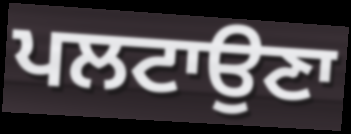
ਪਲਟਾਉਣਾ